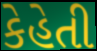
કેહેતી